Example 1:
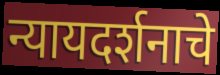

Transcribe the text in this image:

न्यायदर्शनाचे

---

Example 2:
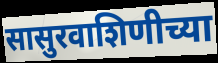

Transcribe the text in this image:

सासुरवाशिणीच्या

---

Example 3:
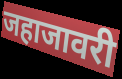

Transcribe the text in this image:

जहाजावरी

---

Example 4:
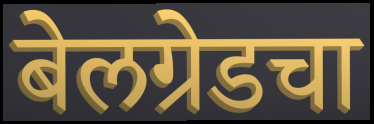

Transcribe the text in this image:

बेलग्रेडचा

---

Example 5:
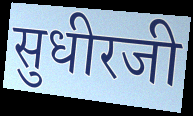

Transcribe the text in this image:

सुधीरजी